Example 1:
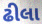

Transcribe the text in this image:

ઢીલા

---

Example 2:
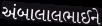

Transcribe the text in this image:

અંબાલાલભાઈને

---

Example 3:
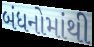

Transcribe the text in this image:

બંધનોમાંથી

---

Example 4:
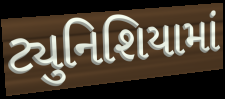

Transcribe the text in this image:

ટ્યુનિશિયામાં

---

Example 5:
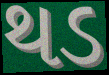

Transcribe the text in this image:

થડ